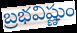
బ్రభవిష్ణుం